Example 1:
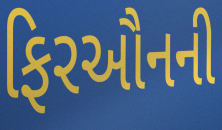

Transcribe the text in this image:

ફિરઔનની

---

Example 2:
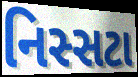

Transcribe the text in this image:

નિસ્સટા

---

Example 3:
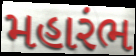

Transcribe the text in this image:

મહારંભ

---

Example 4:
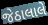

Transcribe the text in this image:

જેઠાલાલે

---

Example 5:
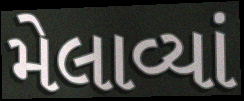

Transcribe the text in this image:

મેલાવ્યાં